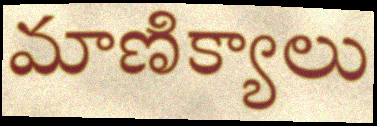
మాణిక్యాలు